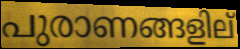
പുരാണങ്ങളില്